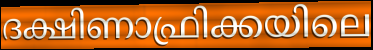
ദക്ഷിണാഫ്രിക്കയിലെ